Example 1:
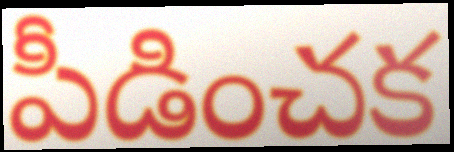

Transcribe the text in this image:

పీడించక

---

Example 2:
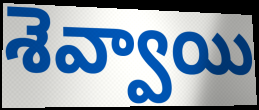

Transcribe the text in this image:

శెవ్వాయి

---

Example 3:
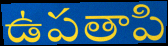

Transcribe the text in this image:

ఉపతాపి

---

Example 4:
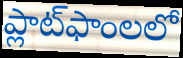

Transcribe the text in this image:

ప్లాట్‌ఫాంలలో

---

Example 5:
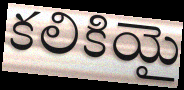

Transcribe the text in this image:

కలికియై